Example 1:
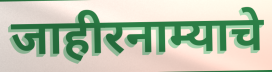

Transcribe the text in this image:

जाहीरनाम्याचे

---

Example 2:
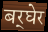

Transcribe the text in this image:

बर्घेर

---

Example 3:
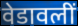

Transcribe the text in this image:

वेडावलीं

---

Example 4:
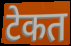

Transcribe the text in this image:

टेकत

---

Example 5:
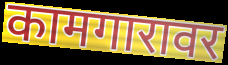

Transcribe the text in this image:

कामगारावर